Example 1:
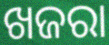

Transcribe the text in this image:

ଖଜରା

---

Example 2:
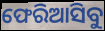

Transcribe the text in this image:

ଫେରିଆସିବୁ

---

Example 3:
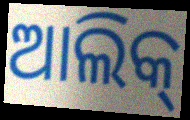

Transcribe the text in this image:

ଆଲିକ୍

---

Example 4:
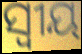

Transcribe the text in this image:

ସ୍ବୀୟ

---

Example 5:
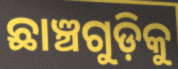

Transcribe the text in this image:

ଛାଞ୍ଚଗୁଡ଼ିକୁ